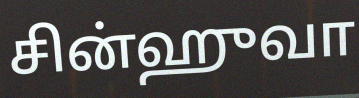
சின்ஹுவா